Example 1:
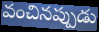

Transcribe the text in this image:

వంచినప్పుడు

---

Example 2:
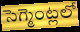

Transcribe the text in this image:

సెగ్మెంట్లలో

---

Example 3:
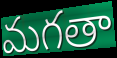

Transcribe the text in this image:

మగతా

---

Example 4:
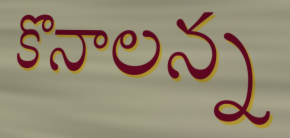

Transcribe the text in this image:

కొనాలన్న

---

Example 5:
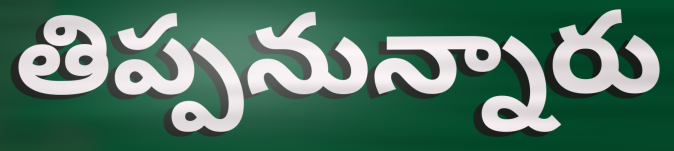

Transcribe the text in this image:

తిప్పనున్నారు